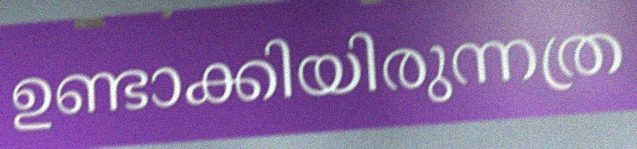
ഉണ്ടാക്കിയിരുന്നത്ര